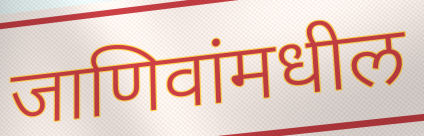
जाणिवांमधील